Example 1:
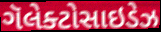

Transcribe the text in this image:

ગૅલેક્ટોસાઇડેઝ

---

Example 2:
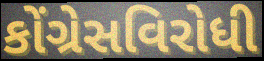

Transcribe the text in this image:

કોંગ્રેસવિરોધી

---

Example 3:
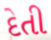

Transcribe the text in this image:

દેતી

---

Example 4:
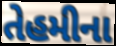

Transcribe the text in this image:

તેહમીના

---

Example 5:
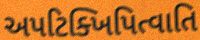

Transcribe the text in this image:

અપટિક્ખિપિત્વાતિ